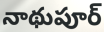
నాథుపూర్